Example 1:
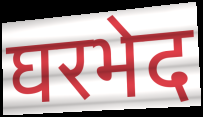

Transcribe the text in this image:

घरभेद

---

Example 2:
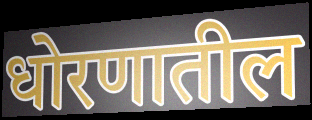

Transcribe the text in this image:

धोरणातील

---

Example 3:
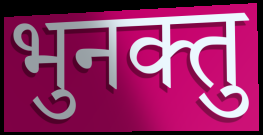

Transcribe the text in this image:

भुनक्तु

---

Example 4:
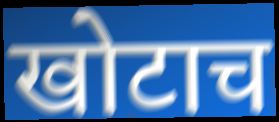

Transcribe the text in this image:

खोटाच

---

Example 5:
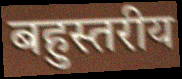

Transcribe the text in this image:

बहुस्तरीय